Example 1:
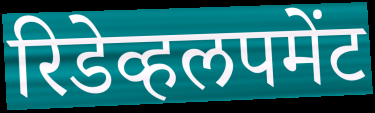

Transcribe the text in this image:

रिडेव्हलपमेंट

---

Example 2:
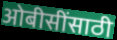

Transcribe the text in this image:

ओबीसींसाठी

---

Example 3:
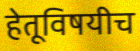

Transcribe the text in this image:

हेतूविषयीच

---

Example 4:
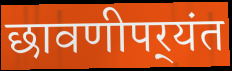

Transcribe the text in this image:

छावणीपर्यंत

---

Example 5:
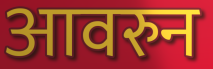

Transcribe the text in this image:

आवरुन